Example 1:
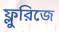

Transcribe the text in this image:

ফ্লুরিজে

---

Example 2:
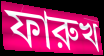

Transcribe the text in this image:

ফারুখ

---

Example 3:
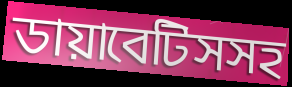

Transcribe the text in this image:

ডায়াবেটিসসহ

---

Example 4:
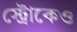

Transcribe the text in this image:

স্ট্রোকেও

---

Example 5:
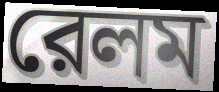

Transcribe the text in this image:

রেলম